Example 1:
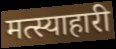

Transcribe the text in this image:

मत्स्याहारी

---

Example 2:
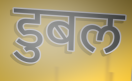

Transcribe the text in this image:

डुबल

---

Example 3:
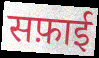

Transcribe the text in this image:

सफ़ाई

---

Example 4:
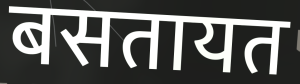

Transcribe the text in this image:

बसतायत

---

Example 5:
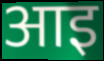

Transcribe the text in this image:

आइ